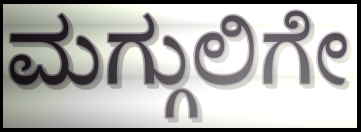
ಮಗ್ಗುಲಿಗೇ